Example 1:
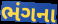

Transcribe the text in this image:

ભંગના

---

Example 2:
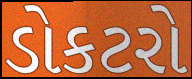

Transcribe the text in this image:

ડોકટરો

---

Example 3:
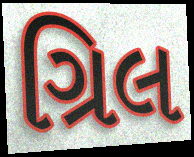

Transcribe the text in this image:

ગ્રિલ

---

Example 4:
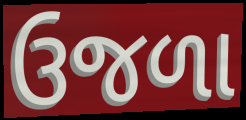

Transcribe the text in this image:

ઉજળા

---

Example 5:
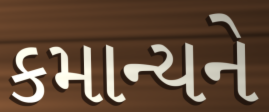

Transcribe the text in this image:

કમાન્યને